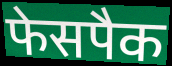
फेसपैक